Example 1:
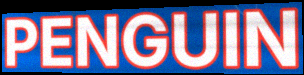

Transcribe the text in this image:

PENGUIN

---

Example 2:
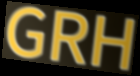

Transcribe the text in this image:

GRH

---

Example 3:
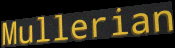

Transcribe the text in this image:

Mullerian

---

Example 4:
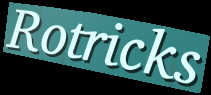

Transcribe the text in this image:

Rotricks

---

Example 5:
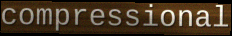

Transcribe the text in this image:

compressional